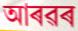
আৰৱৰ